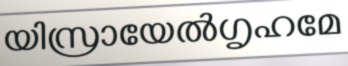
യിസ്രായേൽഗൃഹമേ